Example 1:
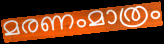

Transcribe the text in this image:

മരണംമാത്രം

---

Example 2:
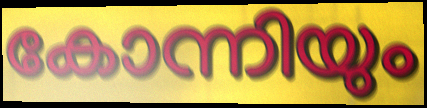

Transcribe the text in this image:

കോന്നിയും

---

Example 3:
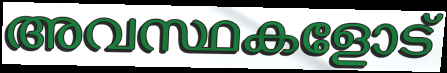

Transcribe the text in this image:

അവസ്ഥകളോട്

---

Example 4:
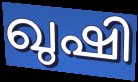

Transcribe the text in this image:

ഖുഷി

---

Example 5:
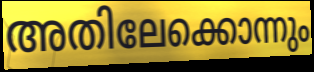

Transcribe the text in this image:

അതിലേക്കൊന്നും